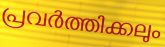
പ്രവർത്തിക്കലും